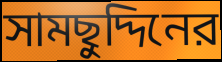
সামছুদ্দিনের